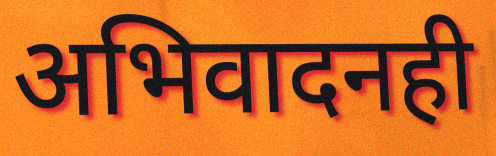
अभिवादनही